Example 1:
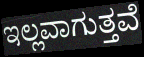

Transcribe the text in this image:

ಇಲ್ಲವಾಗುತ್ತವೆ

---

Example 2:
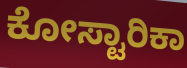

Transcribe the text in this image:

ಕೋಸ್ಟಾರಿಕಾ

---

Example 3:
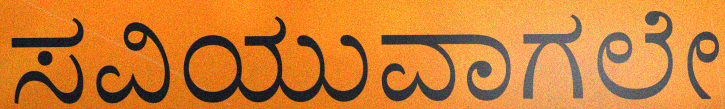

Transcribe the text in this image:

ಸವಿಯುವಾಗಲೇ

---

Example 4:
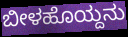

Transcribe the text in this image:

ಬೀಳಹೊಯ್ದನು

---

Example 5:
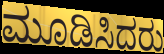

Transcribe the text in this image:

ಮೂಡಿಸಿದರು